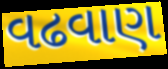
વઢવાણ